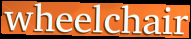
wheelchair